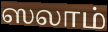
ஸலாம்